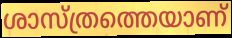
ശാസ്ത്രത്തെയാണ്